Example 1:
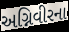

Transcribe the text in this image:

અગ્નિવીરના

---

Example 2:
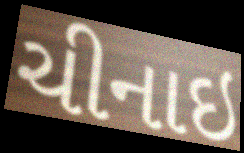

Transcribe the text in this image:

ચીનાઇ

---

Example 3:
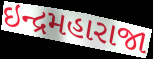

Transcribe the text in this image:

ઇન્દ્રમહારાજા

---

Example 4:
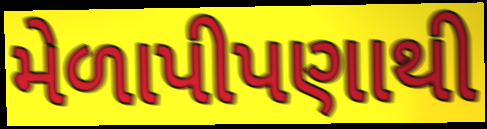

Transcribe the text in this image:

મેળાપીપણાથી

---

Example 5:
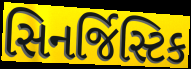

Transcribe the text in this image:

સિનર્જિસ્ટિક